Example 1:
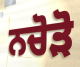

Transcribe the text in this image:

ਨਚੋੜੋ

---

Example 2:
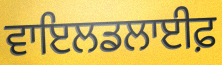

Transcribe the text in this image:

ਵਾਇਲਡਲਾਈਫ਼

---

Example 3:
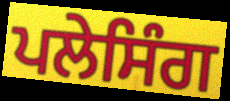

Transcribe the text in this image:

ਪਲੇਸਿੰਗ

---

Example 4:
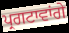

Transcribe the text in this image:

ਪ੍ਰਗਟਾਵਾਂਗੇ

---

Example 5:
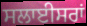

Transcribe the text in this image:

ਸਲਾਈਸਰਾਂ